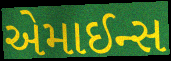
એમાઈન્સ